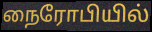
நைரோபியில்